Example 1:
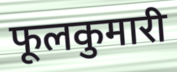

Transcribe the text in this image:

फूलकुमारी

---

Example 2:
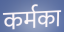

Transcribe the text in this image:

कर्मका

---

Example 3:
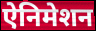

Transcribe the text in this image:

ऐनिमेशन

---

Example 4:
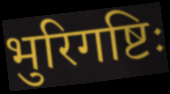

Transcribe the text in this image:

भुरिगष्टिः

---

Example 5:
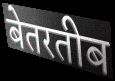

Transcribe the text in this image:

बेतरतीब